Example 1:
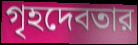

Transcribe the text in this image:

গৃহদেবতার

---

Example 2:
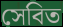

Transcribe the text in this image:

সেবিত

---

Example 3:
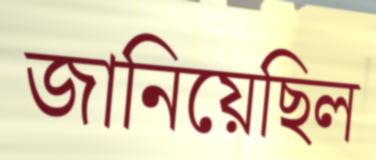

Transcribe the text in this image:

জানিয়েছিল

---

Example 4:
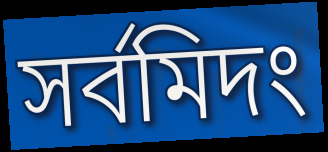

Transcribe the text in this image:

সর্বমিদং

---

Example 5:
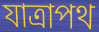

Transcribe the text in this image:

যাত্রাপথ